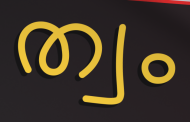
ത്വം